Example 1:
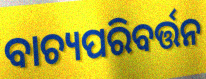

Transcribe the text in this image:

ବାଚ୍ୟପରିବର୍ତ୍ତନ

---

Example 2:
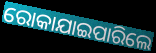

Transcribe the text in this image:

ରୋକାଯାଇପାରିଲେ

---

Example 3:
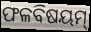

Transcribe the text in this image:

ଫଳବିଷୟମ୍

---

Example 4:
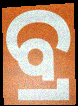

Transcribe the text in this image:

ବ୍ର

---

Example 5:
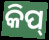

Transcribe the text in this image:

କିପ୍